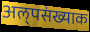
अल्पसंख्याक